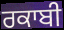
ਰਕਾਬੀ